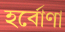
হর্বোণা